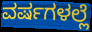
ವರ್ಷಗಳಲ್ಲೆ